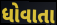
ધોવાતા